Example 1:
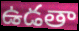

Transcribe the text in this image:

ఉడతా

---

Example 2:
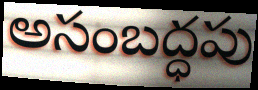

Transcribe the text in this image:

అసంబద్ధపు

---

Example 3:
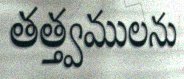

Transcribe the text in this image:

తత్త్వములను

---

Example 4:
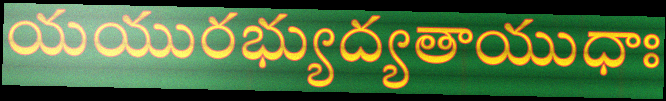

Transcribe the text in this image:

యయురభ్యుద్యతాయుధాః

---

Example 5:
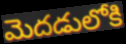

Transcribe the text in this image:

మెదడులోకి